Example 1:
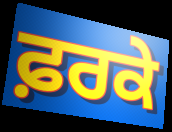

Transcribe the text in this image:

ਫ਼ਰਕੇ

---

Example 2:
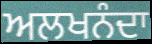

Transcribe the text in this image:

ਅਲਖਨੰਦਾ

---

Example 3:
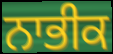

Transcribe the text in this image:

ਨਾਭੀਕ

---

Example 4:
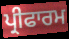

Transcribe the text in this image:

ਪ੍ਰੀਫਾਰਮ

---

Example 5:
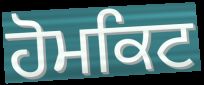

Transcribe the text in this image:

ਹੋਮਕਿਟ